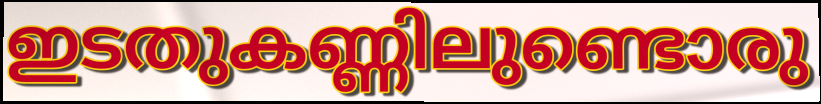
ഇടതുകണ്ണിലുണ്ടൊരു